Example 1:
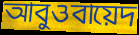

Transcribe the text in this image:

আবুওবায়েদ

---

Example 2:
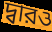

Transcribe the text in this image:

দ্বারও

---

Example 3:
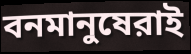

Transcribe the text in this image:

বনমানুষেরাই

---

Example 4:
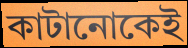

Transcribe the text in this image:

কাটানোকেই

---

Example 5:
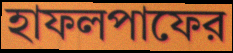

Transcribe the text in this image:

হাফলপাফের